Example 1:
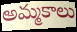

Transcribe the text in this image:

అమ్మకాలు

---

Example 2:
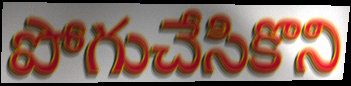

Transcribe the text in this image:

పోగుచేసికొని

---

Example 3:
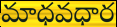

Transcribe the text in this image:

మాధవధార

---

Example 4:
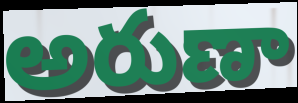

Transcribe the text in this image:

అరుణా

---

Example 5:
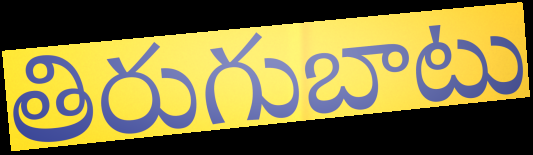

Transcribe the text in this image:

తిరుగుబాటు